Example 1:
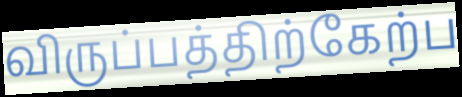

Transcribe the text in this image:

விருப்பத்திற்கேற்ப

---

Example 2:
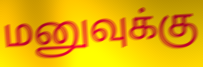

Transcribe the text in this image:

மனுவுக்கு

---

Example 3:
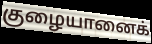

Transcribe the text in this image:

குழையானைக்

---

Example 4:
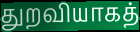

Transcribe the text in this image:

துறவியாகத்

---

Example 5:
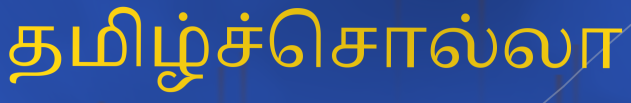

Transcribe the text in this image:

தமிழ்ச்சொல்லா